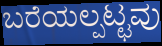
ಬರೆಯಲ್ಪಟ್ಟವು